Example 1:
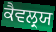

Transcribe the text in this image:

ਕੈਵਲ੍ਰਯ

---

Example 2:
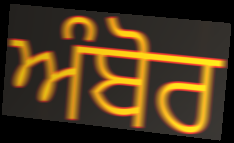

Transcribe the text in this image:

ਅੰਬੋਰ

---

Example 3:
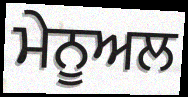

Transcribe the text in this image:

ਮੇਨੂਅਲ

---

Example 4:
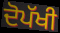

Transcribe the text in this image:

ਦੋਪੱਖੀ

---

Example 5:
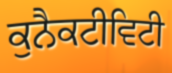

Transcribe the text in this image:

ਕੁਨੈਕਟੀਵਿਟੀ